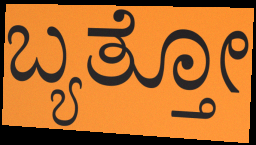
ಬ್ಯತ್ತೋ